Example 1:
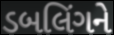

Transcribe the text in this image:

ડબલિંગને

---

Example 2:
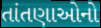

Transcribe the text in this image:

તાંતણાઓનો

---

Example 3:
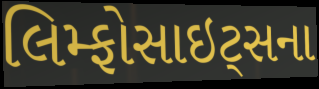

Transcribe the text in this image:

લિમ્ફોસાઇટ્સના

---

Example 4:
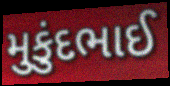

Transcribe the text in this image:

મુકુંદભાઈ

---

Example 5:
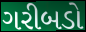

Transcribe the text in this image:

ગરીબડો